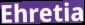
Ehretia